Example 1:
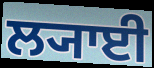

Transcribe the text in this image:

ਲ੍ਯਾਈ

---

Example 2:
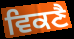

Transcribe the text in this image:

ਵਿਕਣੈ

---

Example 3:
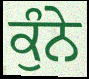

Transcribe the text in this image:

ਕੁੰਨੇ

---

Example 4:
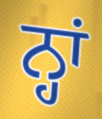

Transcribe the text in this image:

ਨ੍ਹਾਂ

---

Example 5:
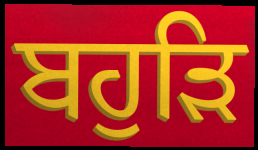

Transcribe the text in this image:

ਬਹੁੜਿ